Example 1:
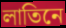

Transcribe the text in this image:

লাতিনে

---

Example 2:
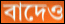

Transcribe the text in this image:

বাদেও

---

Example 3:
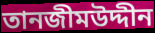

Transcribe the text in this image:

তানজীমউদ্দীন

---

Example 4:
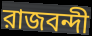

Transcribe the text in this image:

রাজবন্দী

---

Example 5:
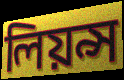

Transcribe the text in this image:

লিয়ন্স